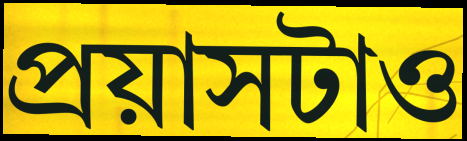
প্রয়াসটাও